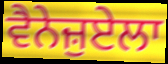
ਵੈਨੇਜ਼ੁਏਲਾ